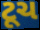
ટૂચ